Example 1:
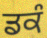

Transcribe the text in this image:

ਡਕੰ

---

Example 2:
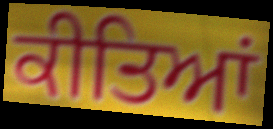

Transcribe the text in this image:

ਕੀਤਿਆਂ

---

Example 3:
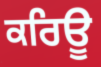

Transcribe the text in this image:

ਕਰਿਊ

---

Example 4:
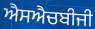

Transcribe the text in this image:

ਐਸਐਚਬੀਜੀ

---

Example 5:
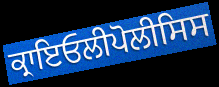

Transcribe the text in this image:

ਕ੍ਰਾਇਓਲੀਪੋਲੀਸਿਸ